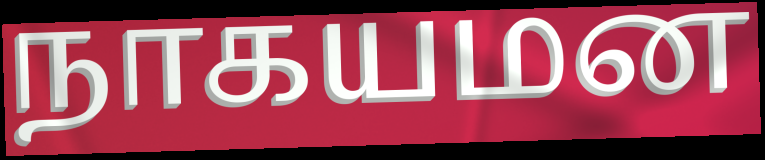
நாகயமன